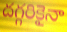
దగ్గరికైనా